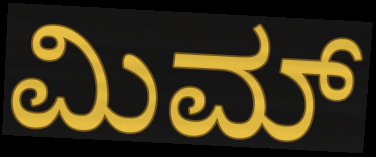
ಮಿಮ್